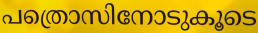
പത്രൊസിനോടുകൂടെ